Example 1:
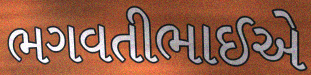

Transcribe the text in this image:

ભગવતીભાઈએ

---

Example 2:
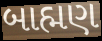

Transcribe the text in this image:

બાહ્મણ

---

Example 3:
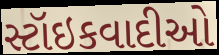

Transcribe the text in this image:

સ્ટૉઇકવાદીઓ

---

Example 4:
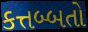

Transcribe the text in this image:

કત્તબ્બતો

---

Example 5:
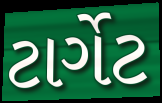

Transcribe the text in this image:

ટાર્ગેટ